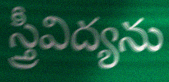
స్త్రీవిద్యను